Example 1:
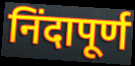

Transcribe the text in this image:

निंदापूर्ण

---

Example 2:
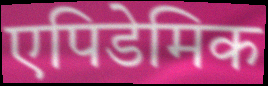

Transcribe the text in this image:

एपिडेमिक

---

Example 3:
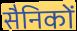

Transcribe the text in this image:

सैनिकों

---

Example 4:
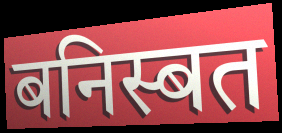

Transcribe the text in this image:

बनिस्‍बत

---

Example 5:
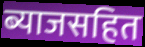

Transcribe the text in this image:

ब्याजसहित